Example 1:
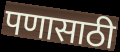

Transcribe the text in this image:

पणासाठी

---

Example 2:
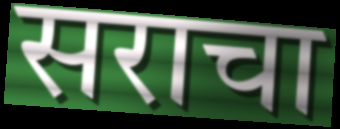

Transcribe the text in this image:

सराचा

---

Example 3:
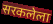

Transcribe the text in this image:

सरकलेला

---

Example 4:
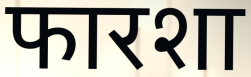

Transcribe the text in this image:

फारशा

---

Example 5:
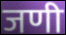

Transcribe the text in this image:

जणी